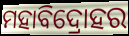
ମହାବିଦ୍ରୋହର